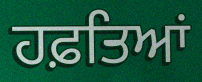
ਹਫ਼ਤਿਆਂ